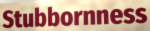
Stubbornness